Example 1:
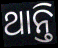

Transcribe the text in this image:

ଥାନ୍ତି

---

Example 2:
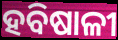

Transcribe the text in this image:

ହବିଷାଳୀ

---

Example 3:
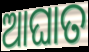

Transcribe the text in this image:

ଆଘାତ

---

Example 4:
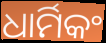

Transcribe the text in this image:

ଧାର୍ମିକଂ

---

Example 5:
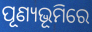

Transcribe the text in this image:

ପୂଣ୍ୟଭୂମିରେ